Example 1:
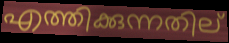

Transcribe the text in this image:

എത്തിക്കുന്നതില്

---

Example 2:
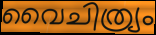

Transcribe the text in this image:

വൈചിത്ര്യം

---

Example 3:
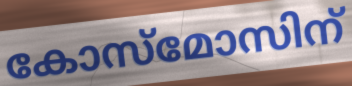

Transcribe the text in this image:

കോസ്മോസിന്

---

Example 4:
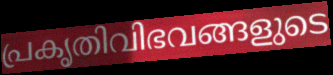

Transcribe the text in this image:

പ്രകൃതിവിഭവങ്ങളുടെ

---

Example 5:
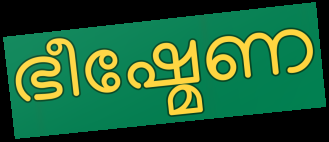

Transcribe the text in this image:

ഭീഷ്മേണ